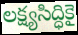
లక్ష్యసిద్ధికై